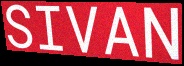
SIVAN